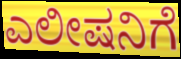
ಎಲೀಷನಿಗೆ